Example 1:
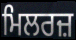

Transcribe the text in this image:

ਮਿਲਰਜ਼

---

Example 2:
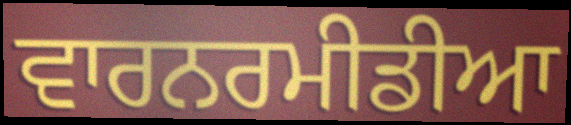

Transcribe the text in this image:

ਵਾਰਨਰਮੀਡੀਆ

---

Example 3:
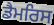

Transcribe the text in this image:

ਡੈਮਰਿਸ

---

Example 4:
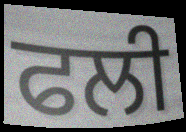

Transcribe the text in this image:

ਫਲੀ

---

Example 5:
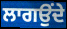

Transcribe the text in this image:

ਲਾਗਉਂਦੇ